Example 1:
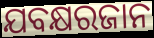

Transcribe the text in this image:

ଯବକ୍ଷରଜାନ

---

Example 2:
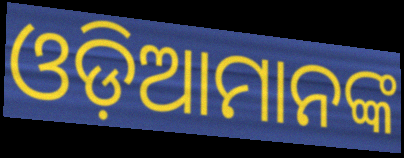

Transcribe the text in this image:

ଓଡ଼ିଆମାନଙ୍କ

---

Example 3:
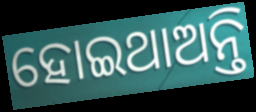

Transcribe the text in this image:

ହୋଇଥାଅନ୍ତି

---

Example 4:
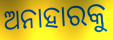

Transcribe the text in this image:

ଅନାହାରକୁ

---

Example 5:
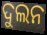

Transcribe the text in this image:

ଦୁଲନ